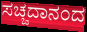
ಸಚ್ಚದಾನಂದ